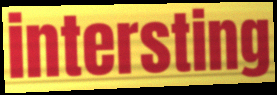
intersting